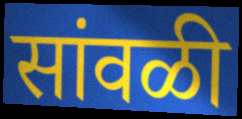
सांवळी